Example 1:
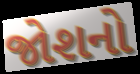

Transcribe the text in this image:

જોશનો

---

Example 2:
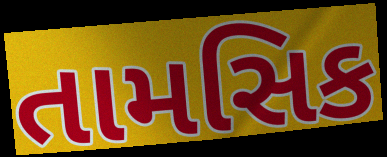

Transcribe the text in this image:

તામસિક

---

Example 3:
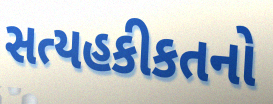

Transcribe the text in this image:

સત્યહકીકતનો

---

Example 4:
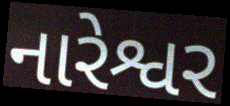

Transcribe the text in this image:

નારેશ્વર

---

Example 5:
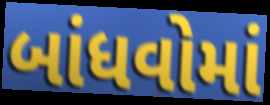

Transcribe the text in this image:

બાંધવોમાં